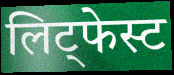
लिट्फेस्ट